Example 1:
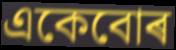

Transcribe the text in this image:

একেবোৰ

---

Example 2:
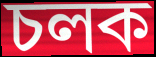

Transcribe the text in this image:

চলক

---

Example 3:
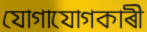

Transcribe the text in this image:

যোগাযোগকাৰী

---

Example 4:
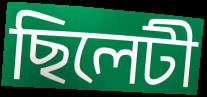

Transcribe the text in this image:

ছিলেটী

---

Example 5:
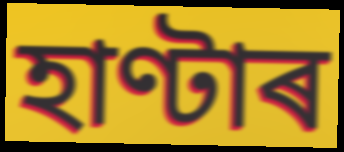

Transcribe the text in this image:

হাণ্টাৰ